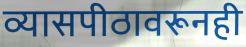
व्यासपीठावरूनही